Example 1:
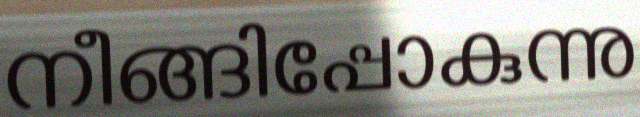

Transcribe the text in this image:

നീങ്ങിപ്പോകുന്നു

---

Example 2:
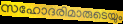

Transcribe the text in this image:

സഹോദരിമാരുടെയും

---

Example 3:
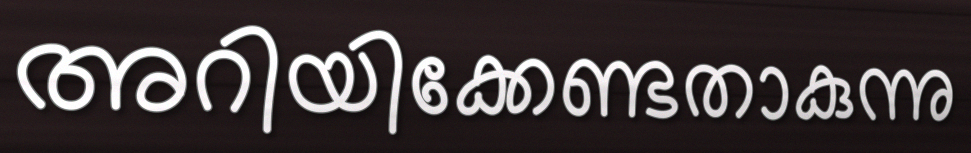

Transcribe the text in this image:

അറിയിക്കേണ്ടതാകുന്നു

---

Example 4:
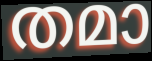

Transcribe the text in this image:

തമാ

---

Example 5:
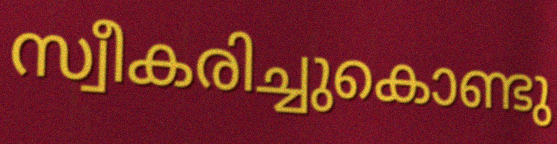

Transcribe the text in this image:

സ്വീകരിച്ചുകൊണ്ടു